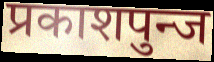
प्रकाशपुन्ज